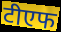
टीएफ